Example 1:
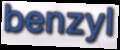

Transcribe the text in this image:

benzyl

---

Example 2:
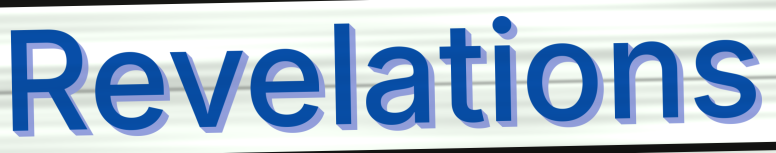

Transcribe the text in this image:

Revelations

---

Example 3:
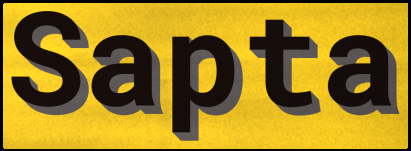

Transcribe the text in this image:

Sapta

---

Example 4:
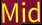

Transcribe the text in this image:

Mid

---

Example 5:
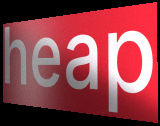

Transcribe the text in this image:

heap